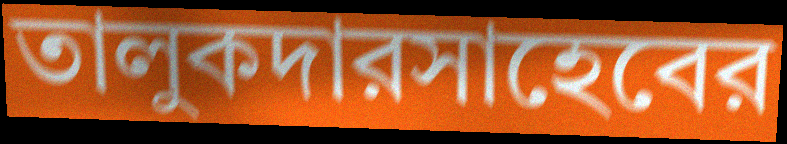
তালুকদারসাহেবের